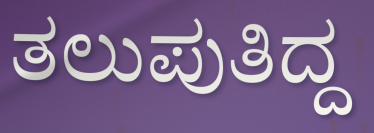
ತಲುಪುತಿದ್ದ